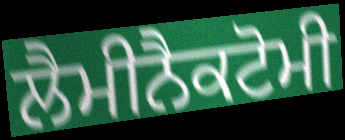
ਲੈਮੀਨੈਕਟੋਮੀ